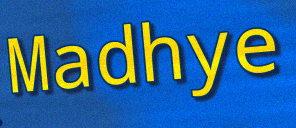
Madhye